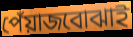
পেঁয়াজবোঝাই